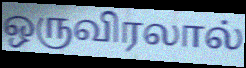
ஒருவிரலால்